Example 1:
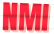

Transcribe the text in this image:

NMI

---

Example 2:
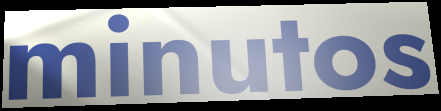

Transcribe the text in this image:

minutos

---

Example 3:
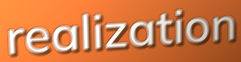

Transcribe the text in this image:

realization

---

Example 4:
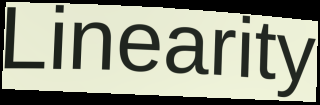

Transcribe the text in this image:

Linearity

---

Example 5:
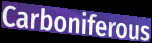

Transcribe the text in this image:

Carboniferous